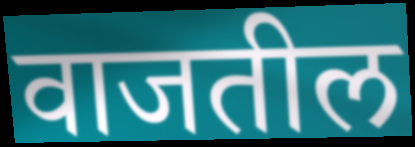
वाजतील